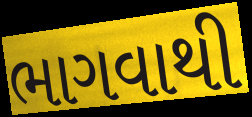
ભાગવાથી